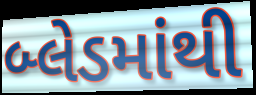
બ્લેડમાંથી